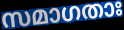
സമാഗതാഃ